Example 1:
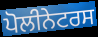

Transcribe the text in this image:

ਪੋਲੀਨੇਟਰਸ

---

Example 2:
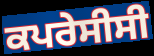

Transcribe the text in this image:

ਕਪਰੇਸੀਸੀ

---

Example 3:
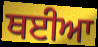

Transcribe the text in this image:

ਥਈਆ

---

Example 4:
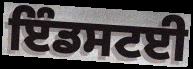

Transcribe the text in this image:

ਇੰਡਸਟਈ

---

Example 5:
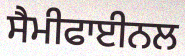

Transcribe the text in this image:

ਸੈਮੀਫਾਈਨਲ